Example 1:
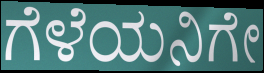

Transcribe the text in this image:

ಗೆಳೆಯನಿಗೇ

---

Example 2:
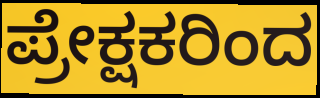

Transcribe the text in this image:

ಪ್ರೇಕ್ಷಕರಿಂದ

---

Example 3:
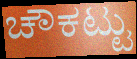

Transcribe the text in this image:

ಚೌಕಟ್ಟು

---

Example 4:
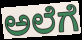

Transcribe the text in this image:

ಅಲೆಗೆ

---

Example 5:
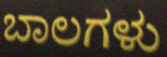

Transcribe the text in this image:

ಬಾಲಗಳು